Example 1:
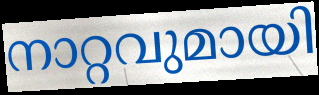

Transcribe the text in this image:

നാറ്റവുമായി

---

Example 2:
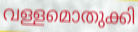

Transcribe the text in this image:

വള്ളമൊതുക്കി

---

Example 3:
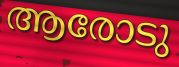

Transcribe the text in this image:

ആരോടു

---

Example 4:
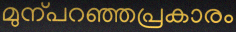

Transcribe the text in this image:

മുന്പറഞ്ഞപ്രകാരം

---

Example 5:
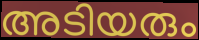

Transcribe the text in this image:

അടിയരും